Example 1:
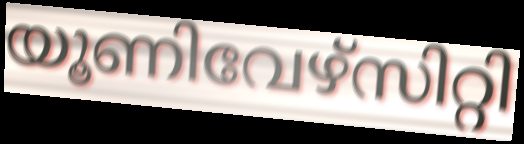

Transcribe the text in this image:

യൂണിവേഴ്സിറ്റി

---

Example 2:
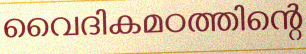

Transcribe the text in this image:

വൈദികമഠത്തിന്റെ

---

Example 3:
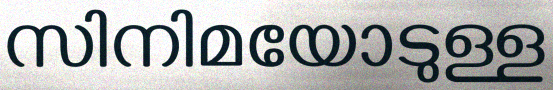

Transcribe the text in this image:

സിനിമയോടുള്ള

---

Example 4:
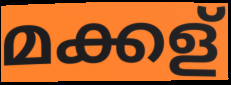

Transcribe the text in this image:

മക്കള്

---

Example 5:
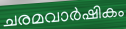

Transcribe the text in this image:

ചരമവാർഷികം